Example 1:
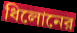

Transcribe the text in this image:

ধিলোনের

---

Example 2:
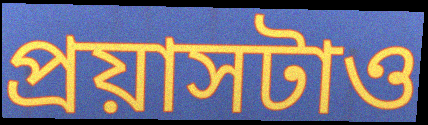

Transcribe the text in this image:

প্রয়াসটাও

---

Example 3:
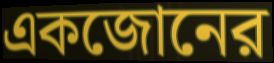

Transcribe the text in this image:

একজোনের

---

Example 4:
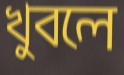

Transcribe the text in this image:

খুবলে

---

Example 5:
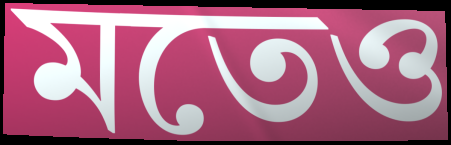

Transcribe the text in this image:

মতেও